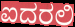
ಐದರಲಿ